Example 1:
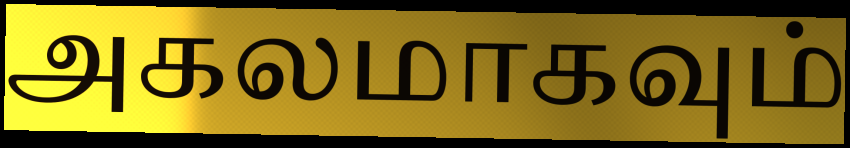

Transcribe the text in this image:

அகலமாகவும்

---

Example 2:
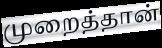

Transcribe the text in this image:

முறைத்தான்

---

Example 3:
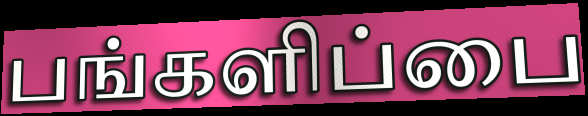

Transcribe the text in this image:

பங்களிப்பை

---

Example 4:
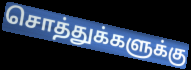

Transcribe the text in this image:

சொத்துக்களுக்கு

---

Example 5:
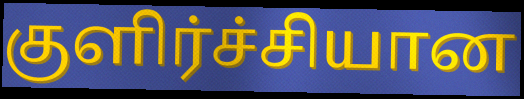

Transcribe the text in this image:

குளிர்ச்சியான